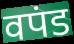
वपंड